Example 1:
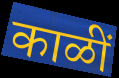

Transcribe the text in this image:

काळीं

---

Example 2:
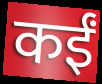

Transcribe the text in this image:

कईं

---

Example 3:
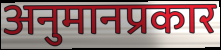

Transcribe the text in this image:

अनुमानप्रकार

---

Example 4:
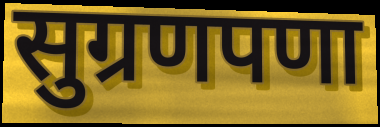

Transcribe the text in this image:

सुग्रणपणा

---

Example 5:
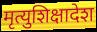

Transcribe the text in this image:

मृत्युशिक्षादेश